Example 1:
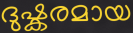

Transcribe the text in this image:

ദുഷ്കരമായ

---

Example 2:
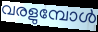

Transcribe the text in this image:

വരളുമ്പോൾ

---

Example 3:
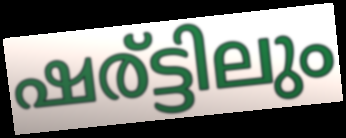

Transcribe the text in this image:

ഷര്ട്ടിലും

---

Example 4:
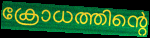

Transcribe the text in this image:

ക്രോധത്തിന്റെ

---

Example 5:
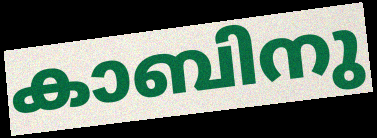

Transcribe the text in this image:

കാബിനു